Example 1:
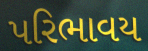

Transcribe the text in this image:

પરિભાવય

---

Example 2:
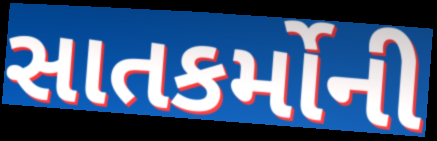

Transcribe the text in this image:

સાતકર્મોની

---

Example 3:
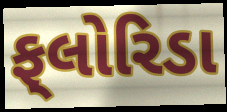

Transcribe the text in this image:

ફ્‌લોરિડા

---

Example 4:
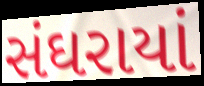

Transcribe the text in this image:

સંઘરાયાં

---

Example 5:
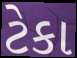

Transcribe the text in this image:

ટેકા